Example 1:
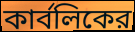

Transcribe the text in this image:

কার্বলিকের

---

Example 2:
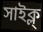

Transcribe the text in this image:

সাইক্ল্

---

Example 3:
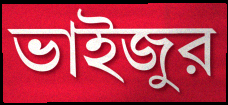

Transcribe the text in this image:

ভাইজুর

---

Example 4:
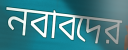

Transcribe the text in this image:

নবাবদের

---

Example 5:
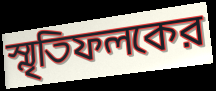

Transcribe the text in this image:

স্মৃতিফলকের